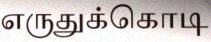
எருதுக்கொடி